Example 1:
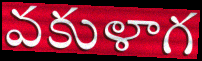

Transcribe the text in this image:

వకుళాగ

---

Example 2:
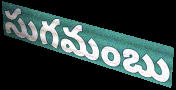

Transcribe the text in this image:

సుగమంబు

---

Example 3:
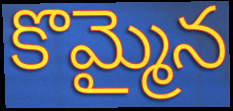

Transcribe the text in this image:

కొమ్మైన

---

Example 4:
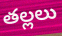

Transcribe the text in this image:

తల్లలు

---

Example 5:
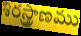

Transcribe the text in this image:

శిరస్త్రాణము